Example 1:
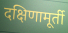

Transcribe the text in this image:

दक्षिणामूर्ती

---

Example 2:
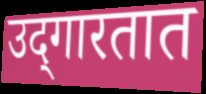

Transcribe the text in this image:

उद्‌गारतात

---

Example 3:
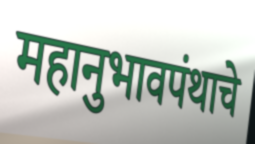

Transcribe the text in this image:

महानुभावपंथाचे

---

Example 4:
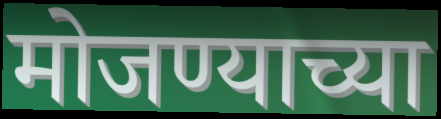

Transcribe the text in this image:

मोजण्याच्या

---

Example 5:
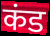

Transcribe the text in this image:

कंड